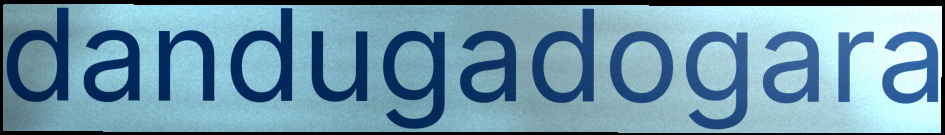
dandugadogara